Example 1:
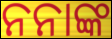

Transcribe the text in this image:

ନନାଙ୍କ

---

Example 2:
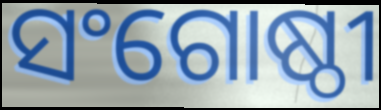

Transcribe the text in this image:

ସଂଗୋଷ୍ଠୀ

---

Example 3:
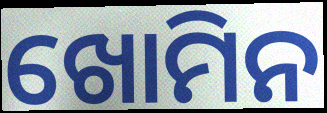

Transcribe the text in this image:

ଖୋମିନ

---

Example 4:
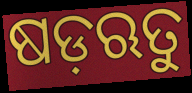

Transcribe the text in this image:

ଷଡ଼ଋତୁ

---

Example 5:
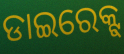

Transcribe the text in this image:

ଡାଇରେକ୍ଟ୍